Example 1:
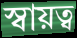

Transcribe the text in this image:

স্বায়ত্ব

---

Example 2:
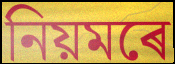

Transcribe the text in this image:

নিয়মৰে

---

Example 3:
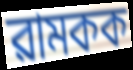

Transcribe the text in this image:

ৱামকক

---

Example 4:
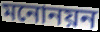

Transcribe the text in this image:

মনোনয়ন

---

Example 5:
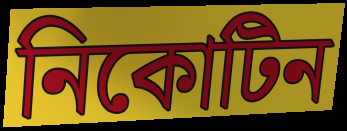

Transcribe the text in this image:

নিকোটিন